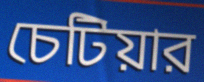
চেটিয়ার